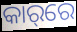
କାର୍‌ରେ